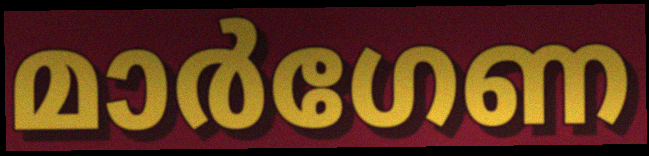
മാർഗേണ